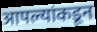
आपल्यांकडून